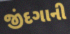
જીંદગાની